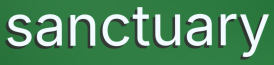
sanctuary